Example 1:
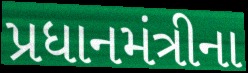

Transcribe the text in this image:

પ્રધાનમંત્રીના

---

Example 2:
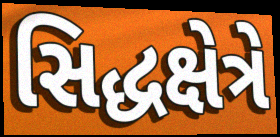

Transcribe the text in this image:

સિદ્ધક્ષેત્રે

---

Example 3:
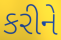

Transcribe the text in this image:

કરીને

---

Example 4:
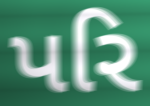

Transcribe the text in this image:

પરિ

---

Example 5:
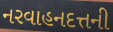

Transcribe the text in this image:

નરવાહનદત્તની